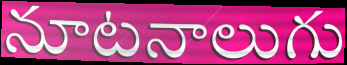
నూటనాలుగు